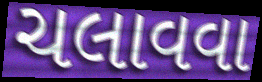
ચલાવવા